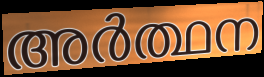
അർത്ഥന